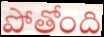
పోతోంది